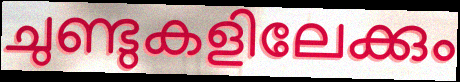
ചുണ്ടുകളിലേക്കും